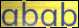
abab